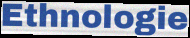
Ethnologie